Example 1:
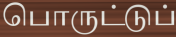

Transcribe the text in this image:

பொருட்டுப்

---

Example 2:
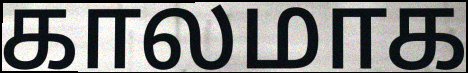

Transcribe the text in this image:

காலமாக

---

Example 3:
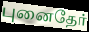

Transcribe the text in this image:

புனைதேர்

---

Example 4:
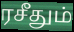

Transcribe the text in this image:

ரசீதும்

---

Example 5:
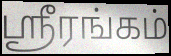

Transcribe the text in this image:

ஸ்ரீரங்கம்